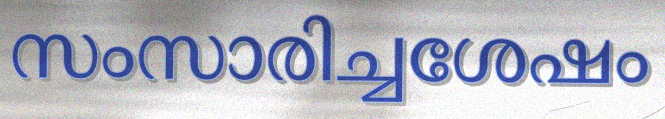
സംസാരിച്ചശേഷം